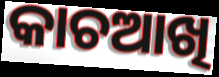
କାଚଆଖି